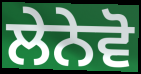
ਲੇਨੇਵੋ